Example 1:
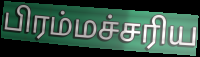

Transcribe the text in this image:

பிரம்மச்சரிய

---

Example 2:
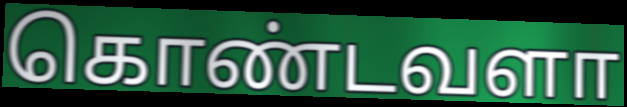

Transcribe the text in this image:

கொண்டவளா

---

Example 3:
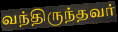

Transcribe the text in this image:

வந்திருந்தவர்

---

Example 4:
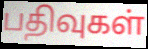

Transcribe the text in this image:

பதிவுகள்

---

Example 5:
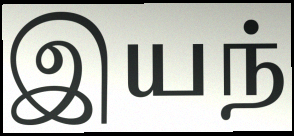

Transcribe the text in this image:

இயந்